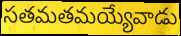
సతమతమయ్యేవాడు